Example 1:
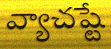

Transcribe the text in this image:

వ్యాచష్టే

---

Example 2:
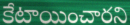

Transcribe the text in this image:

కేటాయించారని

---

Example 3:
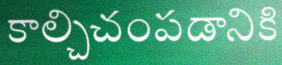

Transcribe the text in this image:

కాల్చిచంపడానికి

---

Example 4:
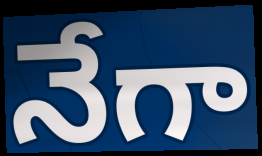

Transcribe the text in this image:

నేగా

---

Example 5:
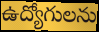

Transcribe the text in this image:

ఉద్యోగులను